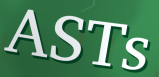
ASTs